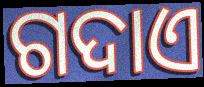
ଗଦାଏ